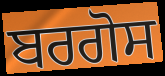
ਬਰਗੋਸ